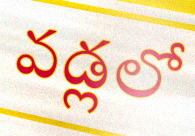
వడ్లలో